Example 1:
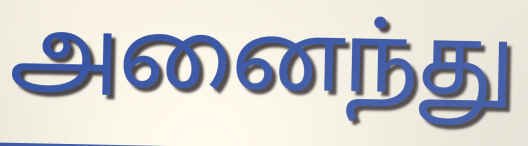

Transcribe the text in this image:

அனைந்து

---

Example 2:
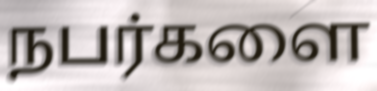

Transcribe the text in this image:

நபர்களை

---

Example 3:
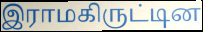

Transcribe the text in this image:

இராமகிருட்டின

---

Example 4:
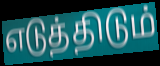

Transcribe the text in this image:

எடுத்திடும்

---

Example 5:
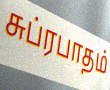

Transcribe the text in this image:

சுப்ரபாதம்